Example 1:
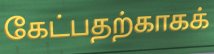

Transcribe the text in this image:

கேட்பதற்காகக்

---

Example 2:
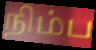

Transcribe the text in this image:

நிம்ப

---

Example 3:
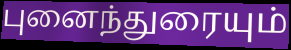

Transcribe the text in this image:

புனைந்துரையும்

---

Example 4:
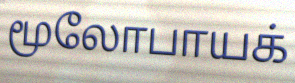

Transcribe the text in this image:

மூலோபாயக்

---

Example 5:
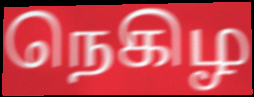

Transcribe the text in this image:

நெகிழ